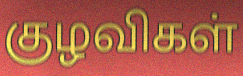
குழவிகள்